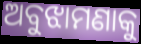
ଅବୁଝାମଣାକୁ